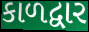
કાળદ્વાર